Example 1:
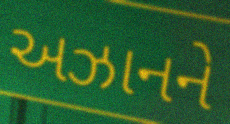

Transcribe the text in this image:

અઝાનને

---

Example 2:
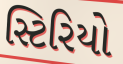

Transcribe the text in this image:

સ્ટિરિયો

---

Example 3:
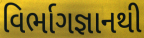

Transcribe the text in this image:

વિર્ભાગજ્ઞાનથી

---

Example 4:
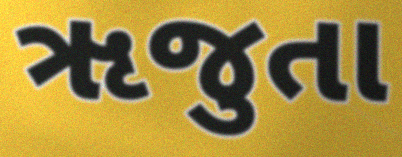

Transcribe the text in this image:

ૠજુતા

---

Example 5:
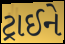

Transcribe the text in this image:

ટ્રાઈને